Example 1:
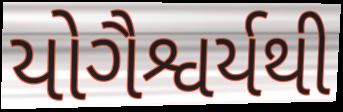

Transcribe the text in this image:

યોગૈશ્વર્યથી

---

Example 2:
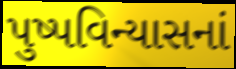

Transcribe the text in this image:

પુષ્પવિન્યાસનાં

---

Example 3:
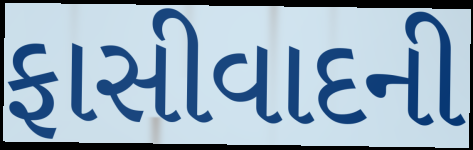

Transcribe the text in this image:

ફાસીવાદની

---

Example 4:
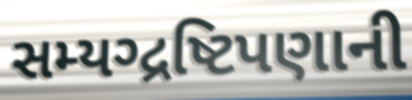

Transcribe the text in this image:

સમ્યગ્દ્રષ્ટિપણાની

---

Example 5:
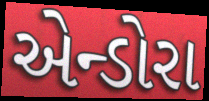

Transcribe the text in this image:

એન્ડોરા